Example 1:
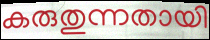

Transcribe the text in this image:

കരുതുന്നതായി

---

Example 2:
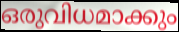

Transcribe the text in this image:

ഒരുവിധമാക്കും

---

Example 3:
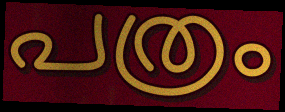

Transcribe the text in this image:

പത്രം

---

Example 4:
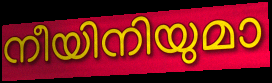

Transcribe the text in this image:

നീയിനിയുമാ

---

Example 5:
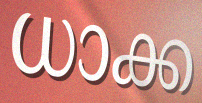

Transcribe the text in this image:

ധാക്ക